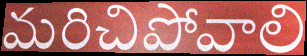
మరిచిపోవాలి